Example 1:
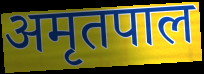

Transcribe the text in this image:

अमृतपाल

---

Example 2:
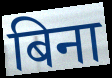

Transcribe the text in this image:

बिना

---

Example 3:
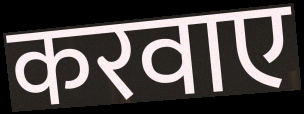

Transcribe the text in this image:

करवाए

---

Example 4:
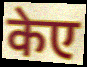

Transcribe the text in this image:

केए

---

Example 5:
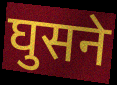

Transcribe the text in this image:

घुसने